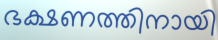
ഭക്ഷണത്തിനായി